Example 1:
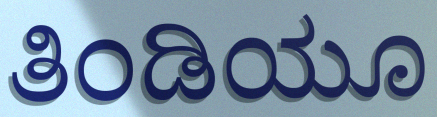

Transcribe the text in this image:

ತಿಂಡಿಯೂ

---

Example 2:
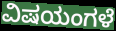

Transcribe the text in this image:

ವಿಷಯಂಗಳೆ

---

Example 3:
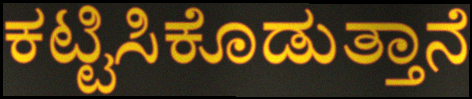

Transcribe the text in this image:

ಕಟ್ಟಿಸಿಕೊಡುತ್ತಾನೆ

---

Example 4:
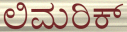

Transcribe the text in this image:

ಲಿಮರಿಕ್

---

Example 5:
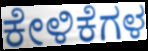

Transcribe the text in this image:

ಕೇಳಿಕೆಗಳ